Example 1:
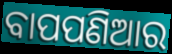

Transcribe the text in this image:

ବାପପଣିଆର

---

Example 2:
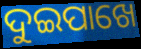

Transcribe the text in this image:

ଦୁଇପାଖେ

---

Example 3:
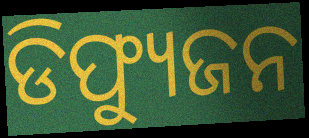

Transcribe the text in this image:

ଡିଫ୍ୟୁଜନ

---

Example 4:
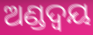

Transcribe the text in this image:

ଅଣ୍ଡଦ୍ୱୟ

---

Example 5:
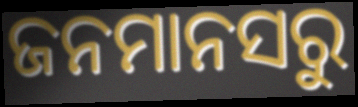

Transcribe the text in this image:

ଜନମାନସରୁ